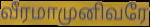
வீரமாமுனிவரே